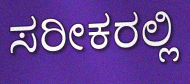
ಸರೀಕರಲ್ಲಿ